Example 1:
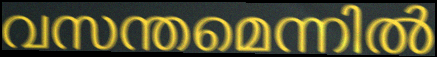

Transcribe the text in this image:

വസന്തമെന്നിൽ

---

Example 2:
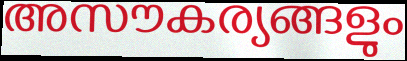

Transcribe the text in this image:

അസൗകര്യങ്ങളും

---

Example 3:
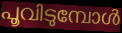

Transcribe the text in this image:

പൂവിടുമ്പോൾ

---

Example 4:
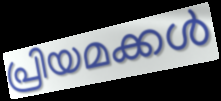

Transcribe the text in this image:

പ്രിയമക്കൾ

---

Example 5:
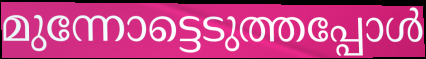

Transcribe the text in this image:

മുന്നോട്ടെടുത്തപ്പോൾ